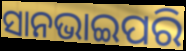
ସାନଭାଇପରି